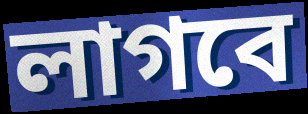
লাগবে